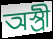
অস্ত্রী